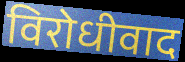
विरोधीवाद